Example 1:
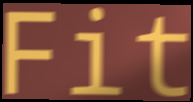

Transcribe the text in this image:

Fit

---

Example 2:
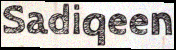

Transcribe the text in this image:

Sadiqeen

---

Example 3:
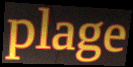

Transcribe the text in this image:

plage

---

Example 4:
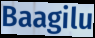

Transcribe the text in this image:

Baagilu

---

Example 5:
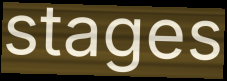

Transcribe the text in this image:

stages